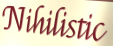
Nihilistic